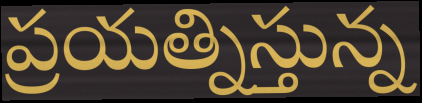
ప్రయత్నిస్తున్న